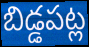
బిడ్డపట్ల